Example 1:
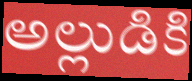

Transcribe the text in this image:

అల్లుడికి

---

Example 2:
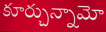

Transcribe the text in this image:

కూర్చున్నామో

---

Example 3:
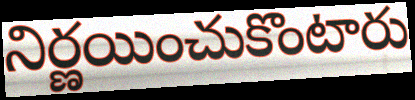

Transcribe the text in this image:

నిర్ణయించుకొంటారు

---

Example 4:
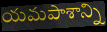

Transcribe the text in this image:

యమపాశాన్ని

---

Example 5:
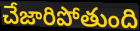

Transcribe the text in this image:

చేజారిపోతుంది